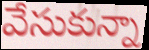
వేసుకున్నా